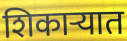
शिकाऱ्यात